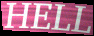
HELL